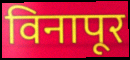
विनापूर